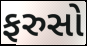
ફરુસો